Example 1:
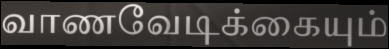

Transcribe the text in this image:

வாணவேடிக்கையும்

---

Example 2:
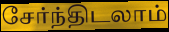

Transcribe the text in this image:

சேர்ந்திடலாம்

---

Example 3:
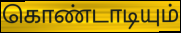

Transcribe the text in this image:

கொண்டாடியும்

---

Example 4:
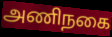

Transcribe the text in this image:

அணிநகை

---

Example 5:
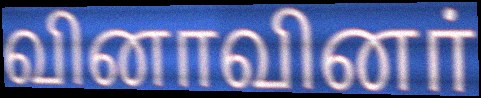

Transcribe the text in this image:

வினாவினர்